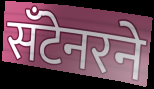
सँटेनरने